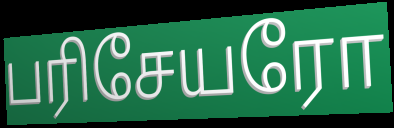
பரிசேயரோ